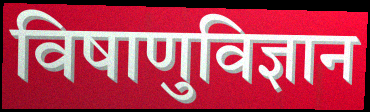
विषाणुविज्ञान